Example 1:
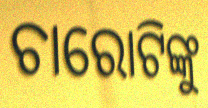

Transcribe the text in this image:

ଚାରୋଟିଙ୍କୁ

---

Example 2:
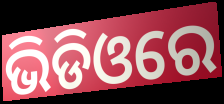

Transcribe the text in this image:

ଭିଡିଓରେ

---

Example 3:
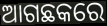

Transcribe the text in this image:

ଆଗଛକରେ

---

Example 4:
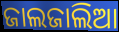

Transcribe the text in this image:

ଜାଲଜାଲିଆ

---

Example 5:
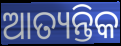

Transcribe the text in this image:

ଆତ୍ୟନ୍ତିକ